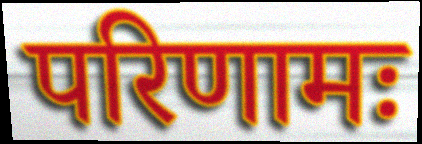
परिणामः